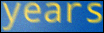
years